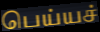
பெய்யச்